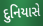
દુનિયાસે